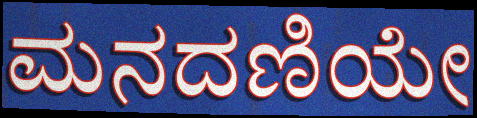
ಮನದಣಿಯೇ